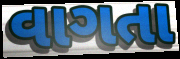
વાગતા